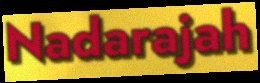
Nadarajah